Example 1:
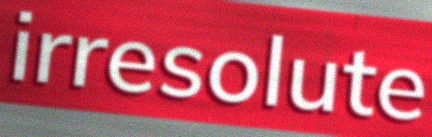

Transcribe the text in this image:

irresolute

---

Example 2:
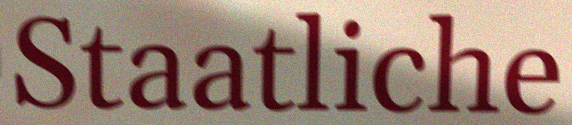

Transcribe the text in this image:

Staatliche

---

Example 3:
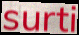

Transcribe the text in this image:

surti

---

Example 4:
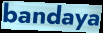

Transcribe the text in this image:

bandaya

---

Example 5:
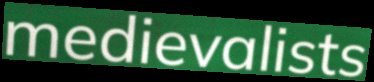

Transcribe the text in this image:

medievalists